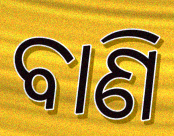
ବାଣି